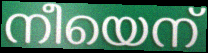
നീയെന്